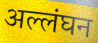
अल्लंघन